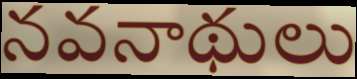
నవనాథులు